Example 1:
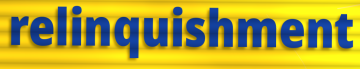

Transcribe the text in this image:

relinquishment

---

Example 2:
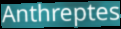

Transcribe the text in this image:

Anthreptes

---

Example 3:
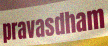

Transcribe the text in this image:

pravasdham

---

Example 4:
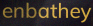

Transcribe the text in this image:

enbathey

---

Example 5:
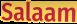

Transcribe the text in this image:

Salaam